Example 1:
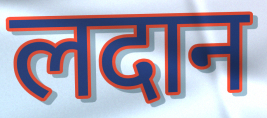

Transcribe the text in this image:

लदान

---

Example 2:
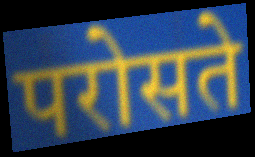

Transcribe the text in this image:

परोसते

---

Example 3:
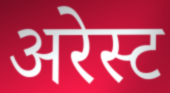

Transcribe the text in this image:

अरेस्ट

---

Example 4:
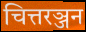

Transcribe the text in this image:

चित्तरञ्जन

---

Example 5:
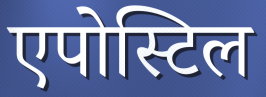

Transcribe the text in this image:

एपोस्टिल